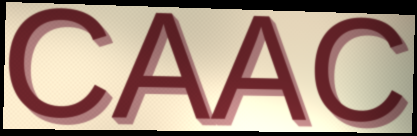
CAAC